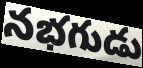
నభగుడు